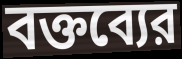
বক্তব্যের